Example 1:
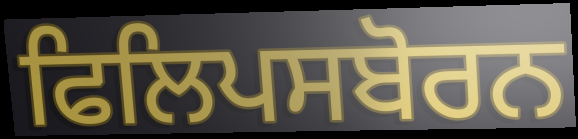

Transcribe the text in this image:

ਫਿਲਿਪਸਬੋਰਨ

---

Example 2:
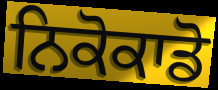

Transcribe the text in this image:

ਨਿਕੋਕਾਡੋ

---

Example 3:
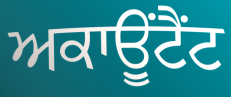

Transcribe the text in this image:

ਅਕਾਉੂਂਟੈਂਟ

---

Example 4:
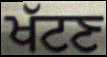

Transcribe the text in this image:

ਖੱਟਣ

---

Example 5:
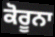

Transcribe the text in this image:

ਕੋਰੂਨਾ